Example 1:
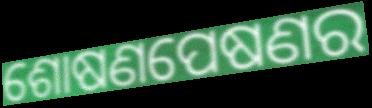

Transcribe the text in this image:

ଶୋଷଣପେଷଣର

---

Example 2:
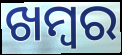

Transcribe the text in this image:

ଖମ୍ବର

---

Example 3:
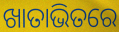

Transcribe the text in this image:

ଖାତାଭିତରେ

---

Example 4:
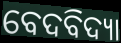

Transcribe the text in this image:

ବେଦବିଦ୍ୟା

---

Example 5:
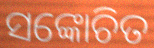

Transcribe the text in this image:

ସଙ୍କୋଚିତ